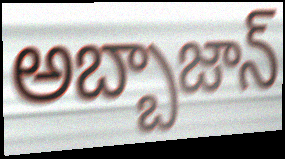
అబ్బాజాన్